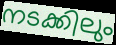
നടക്കിലും